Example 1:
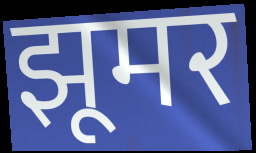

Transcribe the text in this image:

झूमर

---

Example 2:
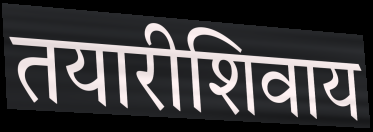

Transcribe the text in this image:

तयारीशिवाय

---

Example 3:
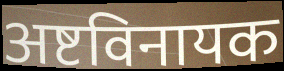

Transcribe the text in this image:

अष्टविनायक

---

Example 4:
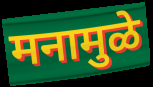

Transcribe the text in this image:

मनामुळे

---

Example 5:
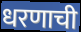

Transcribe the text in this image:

धरणाची